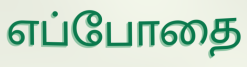
எப்போதை